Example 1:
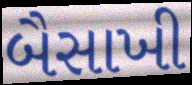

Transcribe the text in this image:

બૈસાખી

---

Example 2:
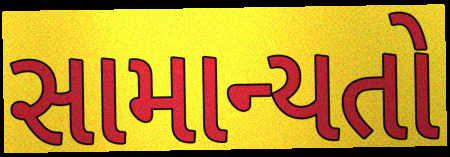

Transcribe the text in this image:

સામાન્યતો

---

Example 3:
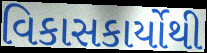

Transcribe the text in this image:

વિકાસકાર્યોથી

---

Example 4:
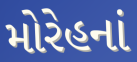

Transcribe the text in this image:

મોરેહનાં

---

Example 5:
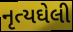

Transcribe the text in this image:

નૃત્યઘેલી